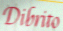
Dibrito